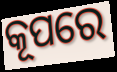
କୂପରେ